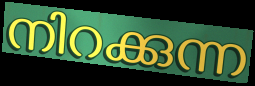
നിറക്കുന്ന